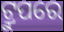
ଟ୍ରୁପରେ